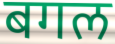
बगल